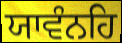
ਯਾਵੰਨਹਿ